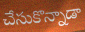
చేసుకొన్నాడా